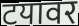
टयावर